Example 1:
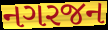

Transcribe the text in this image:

નગરજન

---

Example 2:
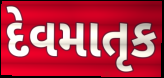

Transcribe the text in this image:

દેવમાતૃક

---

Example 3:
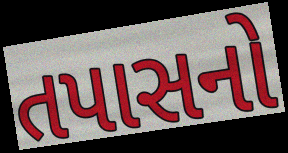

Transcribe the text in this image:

તપાસનો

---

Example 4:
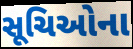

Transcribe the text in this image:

સૂચિઓના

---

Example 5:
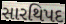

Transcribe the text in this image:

સારથિપદ